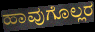
ಹಾವುಗೊಲ್ಲರ